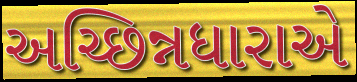
અચ્છિન્નધારાએ